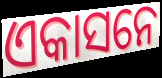
ଏକାସନେ